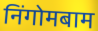
निंगोमबाम